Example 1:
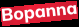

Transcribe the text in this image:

Bopanna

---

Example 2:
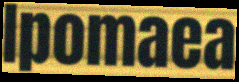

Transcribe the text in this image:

Ipomaea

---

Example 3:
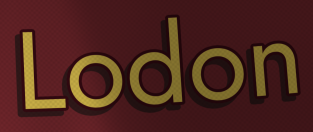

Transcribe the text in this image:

Lodon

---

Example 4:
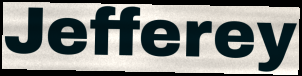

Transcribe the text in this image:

Jefferey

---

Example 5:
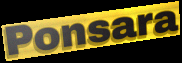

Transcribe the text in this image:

Ponsara